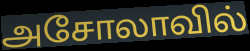
அசோலாவில்